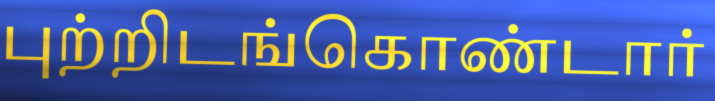
புற்றிடங்கொண்டார்